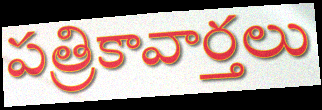
పత్రికావార్తలు